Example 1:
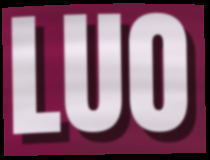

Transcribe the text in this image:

LUO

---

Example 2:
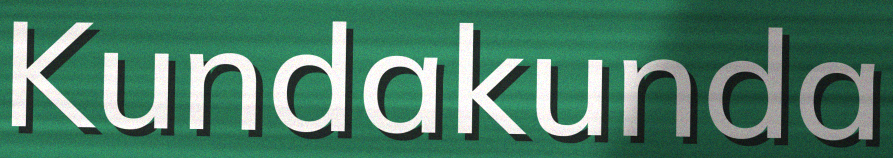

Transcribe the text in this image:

Kundakunda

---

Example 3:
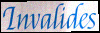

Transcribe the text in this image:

Invalides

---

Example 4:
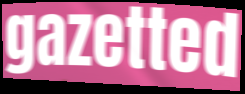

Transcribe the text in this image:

gazetted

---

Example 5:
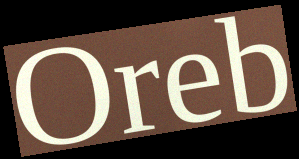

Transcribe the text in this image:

Oreb